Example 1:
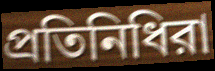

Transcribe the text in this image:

প্রতিনিধিরা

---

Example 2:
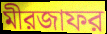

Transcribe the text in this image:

মীরজাফর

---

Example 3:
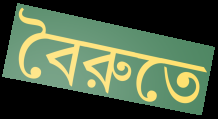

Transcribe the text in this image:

বৈরুতে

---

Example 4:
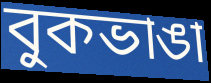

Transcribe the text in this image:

বুকভাঙা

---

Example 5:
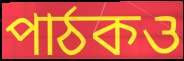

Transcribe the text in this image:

পাঠকও